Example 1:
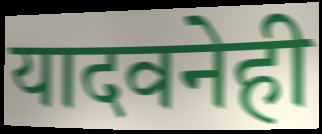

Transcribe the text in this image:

यादवनेही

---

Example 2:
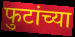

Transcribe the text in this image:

फुटांच्या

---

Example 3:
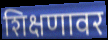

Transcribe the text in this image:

शिक्षणावर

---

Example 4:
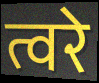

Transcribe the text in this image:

त्वरे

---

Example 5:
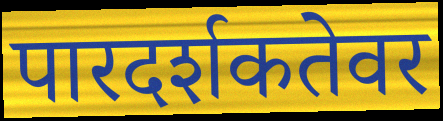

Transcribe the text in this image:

पारदर्शकतेवर